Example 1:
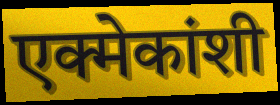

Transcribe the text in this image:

एक्मेकांशी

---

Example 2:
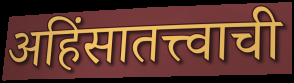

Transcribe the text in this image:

अहिंसातत्त्वाची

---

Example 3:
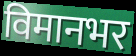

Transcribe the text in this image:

विमानभर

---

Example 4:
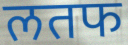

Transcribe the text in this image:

लतफ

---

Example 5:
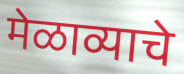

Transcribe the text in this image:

मेळाव्याचे